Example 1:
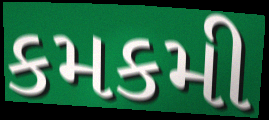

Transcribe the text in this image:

કમકમી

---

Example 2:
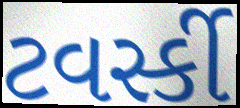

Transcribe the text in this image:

ટવર્સ્કી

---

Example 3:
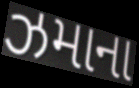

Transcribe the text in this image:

ઝમાના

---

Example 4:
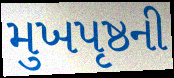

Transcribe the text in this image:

મુખપૃષ્ઠની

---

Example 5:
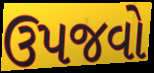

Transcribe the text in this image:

ઉપજવો